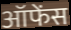
ऑफेंस